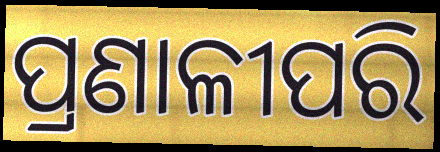
ପ୍ରଣାଳୀପରି